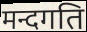
मन्दगति